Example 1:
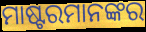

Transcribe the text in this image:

ମାଷ୍ଟରମାନଙ୍କର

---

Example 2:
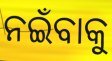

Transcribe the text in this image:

ନଇଁବାକୁ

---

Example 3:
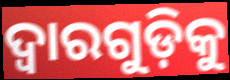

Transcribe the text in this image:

ଦ୍ୱାରଗୁଡ଼ିକୁ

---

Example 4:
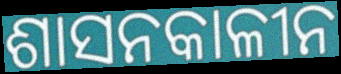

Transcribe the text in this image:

ଶାସନକାଳୀନ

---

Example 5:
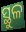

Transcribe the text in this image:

ସ୍ଥୁଳ